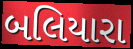
બલિયારા